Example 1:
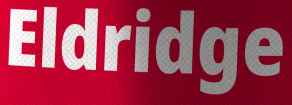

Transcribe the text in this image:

Eldridge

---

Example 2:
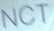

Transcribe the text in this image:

NCT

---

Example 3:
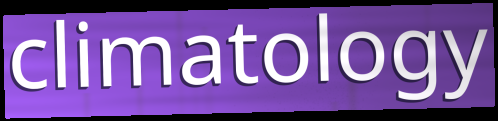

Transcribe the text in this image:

climatology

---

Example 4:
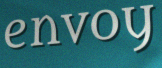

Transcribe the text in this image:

envoy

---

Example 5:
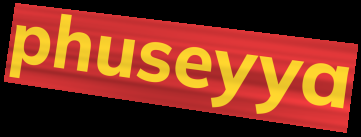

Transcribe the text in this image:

phuseyya